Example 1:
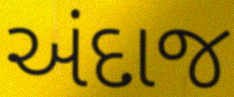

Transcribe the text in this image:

અંદાજ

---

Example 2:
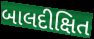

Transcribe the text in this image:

બાલદીક્ષિત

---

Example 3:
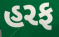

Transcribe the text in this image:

હરફ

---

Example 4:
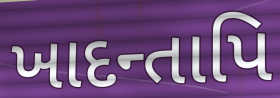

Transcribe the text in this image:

ખાદન્તાપિ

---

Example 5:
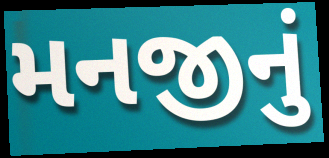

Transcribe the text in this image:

મનજીનું